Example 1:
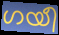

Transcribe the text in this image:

ഗയീ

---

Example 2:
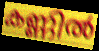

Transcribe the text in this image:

കണ്ണിൽ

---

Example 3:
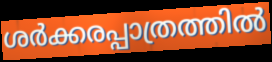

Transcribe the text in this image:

ശർക്കരപ്പാത്രത്തിൽ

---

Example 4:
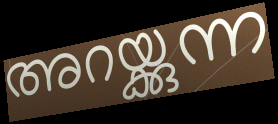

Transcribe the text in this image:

അറയ്ക്കുന്ന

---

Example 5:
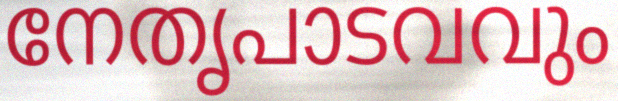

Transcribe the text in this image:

നേതൃപാടവവും